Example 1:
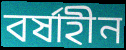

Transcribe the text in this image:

বর্ষাহীন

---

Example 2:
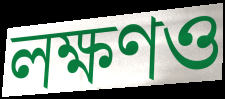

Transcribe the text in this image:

লক্ষণও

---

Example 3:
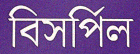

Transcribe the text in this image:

বিসর্পিল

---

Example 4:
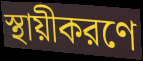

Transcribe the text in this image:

স্থায়ীকরণে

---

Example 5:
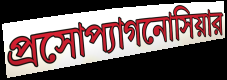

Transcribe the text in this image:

প্রসোপ্যাগনোসিয়ার